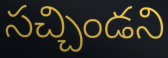
సచ్చిండని